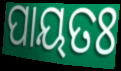
ପାୟତଃ